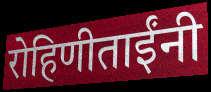
रोहिणीताईंनी